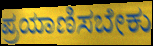
ಪ್ರಯಾಣಿಸಬೇಕು